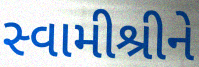
સ્વામીશ્રીને